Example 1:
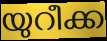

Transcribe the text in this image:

യുറീക്ക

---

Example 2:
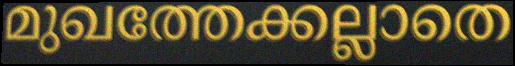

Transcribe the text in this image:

മുഖത്തേക്കല്ലാതെ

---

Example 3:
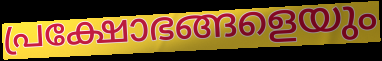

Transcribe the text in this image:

പ്രക്ഷോഭങ്ങളെയും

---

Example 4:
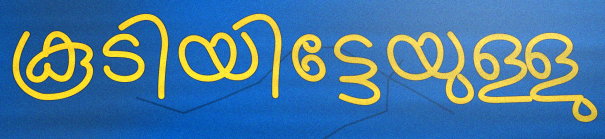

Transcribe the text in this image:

കൂടിയിട്ടേയുള്ളു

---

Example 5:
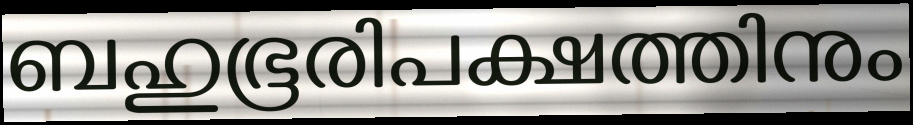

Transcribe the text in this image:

ബഹുഭൂരിപക്ഷത്തിനും